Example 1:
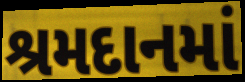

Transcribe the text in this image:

શ્રમદાનમાં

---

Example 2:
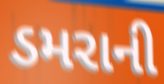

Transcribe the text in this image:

ડમરાની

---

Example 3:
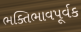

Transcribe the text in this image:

ભક્તિભાવપૂર્વક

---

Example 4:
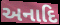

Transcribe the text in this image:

અનાદિ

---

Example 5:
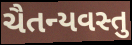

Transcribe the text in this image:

ચૈતન્યવસ્તુ